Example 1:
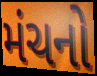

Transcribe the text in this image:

મંચનો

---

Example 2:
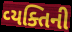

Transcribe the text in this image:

વ્‍યક્તિની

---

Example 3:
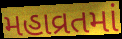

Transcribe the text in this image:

મહાવ્રતમાં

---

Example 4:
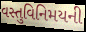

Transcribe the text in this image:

વસ્તુવિનિમયની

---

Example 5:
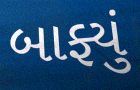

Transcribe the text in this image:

બાફ્યું